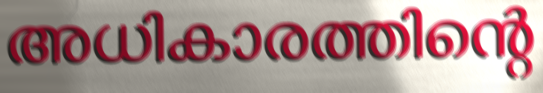
അധികാരത്തിന്റെ